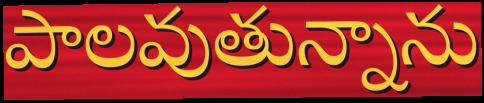
పాలవుతున్నాను